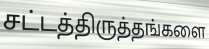
சட்டத்திருத்தங்களை